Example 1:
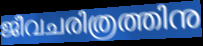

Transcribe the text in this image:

ജീവചരിത്രത്തിനു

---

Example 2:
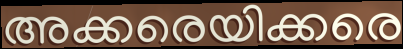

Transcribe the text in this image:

അക്കരെയിക്കരെ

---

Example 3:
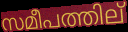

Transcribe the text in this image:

സമീപത്തില്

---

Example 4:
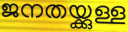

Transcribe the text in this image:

ജനതയ്ക്കുള്ള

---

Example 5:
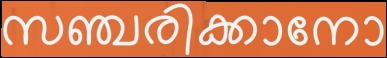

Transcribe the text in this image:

സഞ്ചരിക്കാനോ